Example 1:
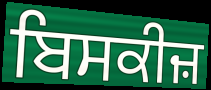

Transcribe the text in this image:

ਬਿਸਕੀਜ਼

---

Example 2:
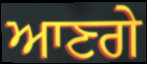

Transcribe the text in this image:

ਆਣਗੇ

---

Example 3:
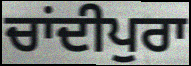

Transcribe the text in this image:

ਚਾਂਦੀਪੁਰਾ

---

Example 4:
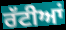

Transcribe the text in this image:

ਰੱਟੀਆਂ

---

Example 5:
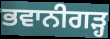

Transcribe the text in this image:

ਭਵਾਨੀਗੜ੍ਹ